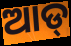
ଆଡ୍